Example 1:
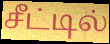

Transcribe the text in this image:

சீட்டில்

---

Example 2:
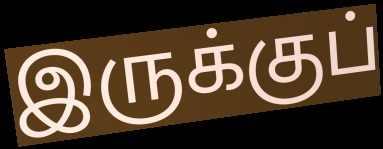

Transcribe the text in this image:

இருக்குப்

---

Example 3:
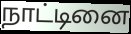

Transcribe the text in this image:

நாட்டினை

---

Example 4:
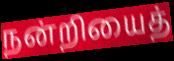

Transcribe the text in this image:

நன்றியைத்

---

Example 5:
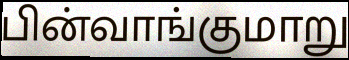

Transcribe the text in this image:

பின்வாங்குமாறு